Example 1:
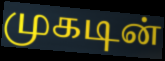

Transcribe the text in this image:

முகடின்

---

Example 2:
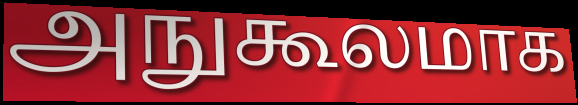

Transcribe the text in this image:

அநுகூலமாக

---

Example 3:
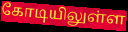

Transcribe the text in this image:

கோடியிலுள்ள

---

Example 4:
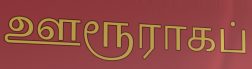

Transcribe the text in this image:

ஊரூராகப்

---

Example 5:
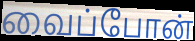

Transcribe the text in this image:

வைப்போன்